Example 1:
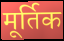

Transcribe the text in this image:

मूर्तिक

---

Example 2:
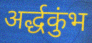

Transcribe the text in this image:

अर्द्धकुंभ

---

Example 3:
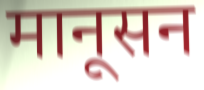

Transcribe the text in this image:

मानूसन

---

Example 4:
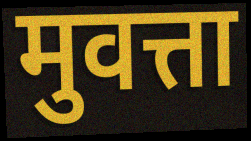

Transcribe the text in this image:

मुवत्ता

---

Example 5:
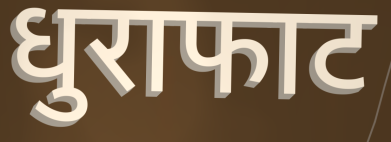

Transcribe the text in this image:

धुराफाट